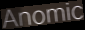
Anomic